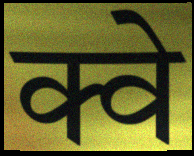
क्वे